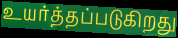
உயர்த்தப்படுகிறது